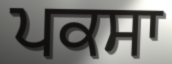
ਪਕਸਾ